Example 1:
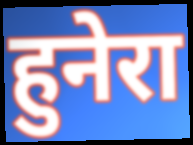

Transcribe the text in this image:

हुनेरा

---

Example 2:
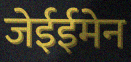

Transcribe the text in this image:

जेईईमेन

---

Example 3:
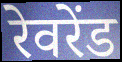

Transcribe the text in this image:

रेवरेंड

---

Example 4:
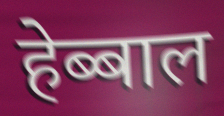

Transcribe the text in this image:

हेब्बाल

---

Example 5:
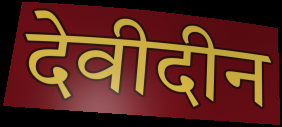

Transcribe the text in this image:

देवीदीन